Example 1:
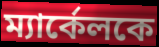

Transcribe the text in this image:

ম্যার্কেলকে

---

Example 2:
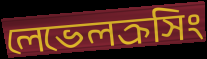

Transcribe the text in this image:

লেভেলক্রসিং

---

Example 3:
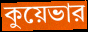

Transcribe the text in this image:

কুয়েভার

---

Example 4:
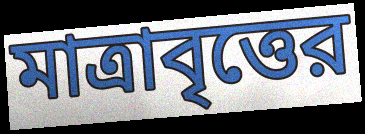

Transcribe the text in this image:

মাত্রাবৃত্তের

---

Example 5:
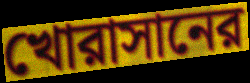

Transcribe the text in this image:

খোরাসানের